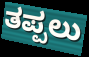
ತಪ್ಪಲು